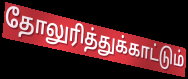
தோலுரித்துக்காட்டும்